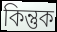
কিন্তুক